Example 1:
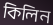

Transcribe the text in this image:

কিলিন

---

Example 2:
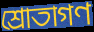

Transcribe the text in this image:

শ্রোতাগণ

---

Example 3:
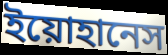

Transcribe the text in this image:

ইয়োহানেস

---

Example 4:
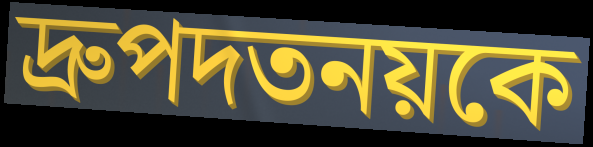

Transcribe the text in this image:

দ্রুপদতনয়কে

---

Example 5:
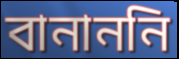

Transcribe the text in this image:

বানাননি